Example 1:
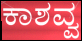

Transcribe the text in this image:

ಕಾಶವ್ವ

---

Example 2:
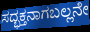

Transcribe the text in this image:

ಸದ್ಭಕ್ತನಾಗಬಲ್ಲನೇ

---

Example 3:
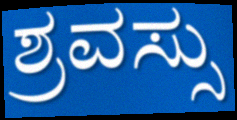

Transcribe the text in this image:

ಶ್ರವಸ್ಸು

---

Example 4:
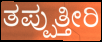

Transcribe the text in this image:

ತಪ್ಪುತ್ತೀರಿ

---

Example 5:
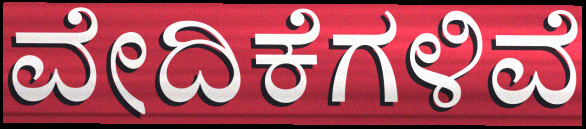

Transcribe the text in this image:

ವೇದಿಕೆಗಳಿವೆ